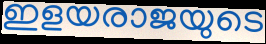
ഇളയരാജയുടെ